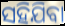
ସହିଯିବା